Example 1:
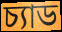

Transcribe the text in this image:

চ্যাড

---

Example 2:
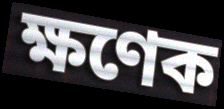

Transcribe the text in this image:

ক্ষণেক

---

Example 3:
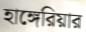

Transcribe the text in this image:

হাঙ্গেরিয়ার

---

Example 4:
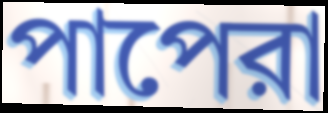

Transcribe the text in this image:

পাপেরা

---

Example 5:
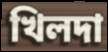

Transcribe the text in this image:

খিলদা